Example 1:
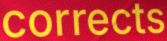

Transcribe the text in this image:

corrects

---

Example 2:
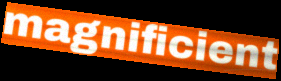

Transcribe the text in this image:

magnificient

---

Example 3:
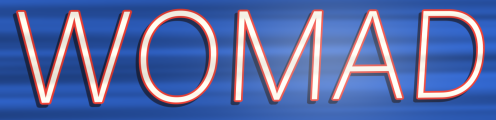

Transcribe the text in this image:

WOMAD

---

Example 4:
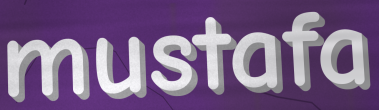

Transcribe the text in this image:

mustafa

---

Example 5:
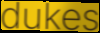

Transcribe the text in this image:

dukes